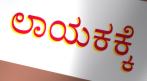
ಲಾಯಕಕ್ಕೆ